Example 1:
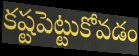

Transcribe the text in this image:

కష్టపెట్టుకోవడం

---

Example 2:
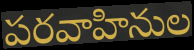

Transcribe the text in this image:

పరవాహినుల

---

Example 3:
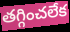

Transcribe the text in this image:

తగ్గించలేక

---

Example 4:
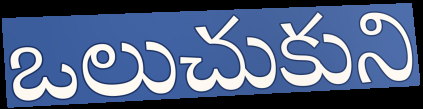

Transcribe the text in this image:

ఒలుచుకుని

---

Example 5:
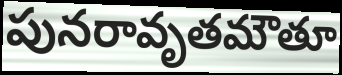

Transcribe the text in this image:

పునరావృతమౌతూ